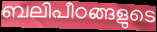
ബലിപീഠങ്ങളുടെ